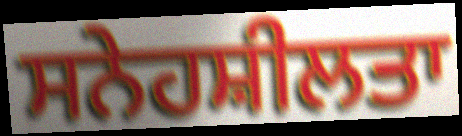
ਸਨੇਹਸ਼ੀਲਤਾ